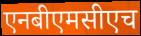
एनबीएमसीएच